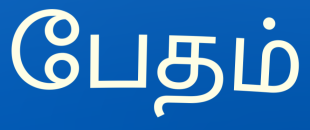
பேதம்